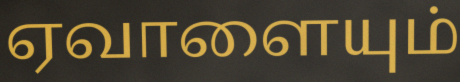
ஏவாளையும்